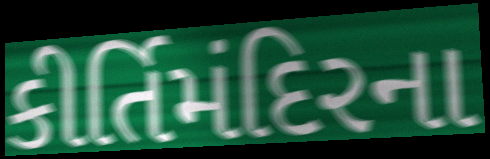
કીર્તિમંદિરના